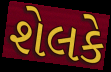
શેલકે